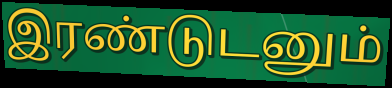
இரண்டுடனும்